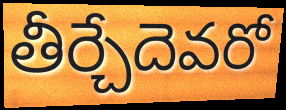
తీర్చేదెవరో